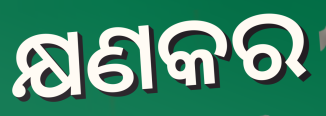
କ୍ଷଣକର